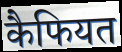
कैफियत